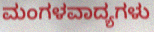
ಮಂಗಳವಾದ್ಯಗಳು